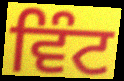
ਵਿੰਟ